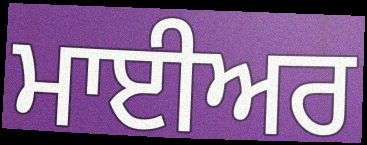
ਮਾਈਅਰ